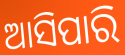
ଆସିପାରି